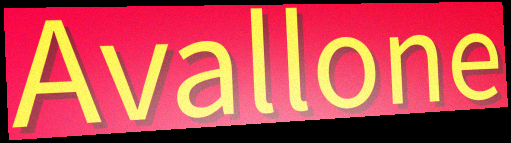
Avallone